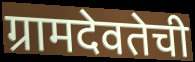
ग्रामदेवतेची